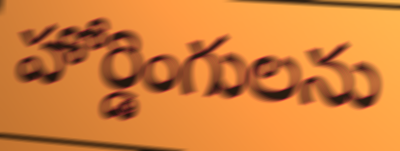
హోర్డింగులను